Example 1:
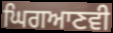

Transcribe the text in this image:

ਘਿਗਆਣਵੀ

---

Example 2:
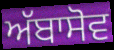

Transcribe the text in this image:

ਅੱਬਾਸੋਵ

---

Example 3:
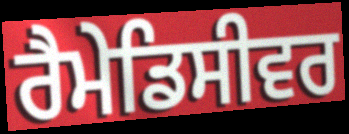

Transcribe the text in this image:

ਰੈਮੇਡਿਸੀਵਰ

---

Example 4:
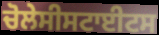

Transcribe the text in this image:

ਚੋਲੇਸੀਸਟਾਈਟਸ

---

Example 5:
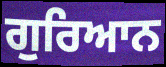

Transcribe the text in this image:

ਗੁਰਿਆਨ